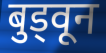
बुड्वून